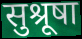
सुश्रूषा